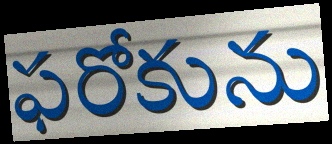
ఫరోకును